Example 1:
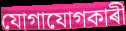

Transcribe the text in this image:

যোগাযোগকাৰী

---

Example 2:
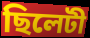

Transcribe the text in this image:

ছিলেটী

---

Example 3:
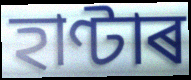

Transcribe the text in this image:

হাণ্টাৰ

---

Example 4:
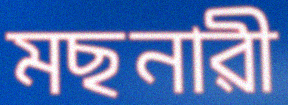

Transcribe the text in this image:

মছনাৱী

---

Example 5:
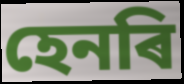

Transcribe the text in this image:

হেনৰি